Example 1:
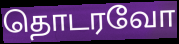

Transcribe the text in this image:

தொடரவோ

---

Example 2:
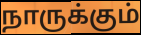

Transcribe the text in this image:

நாருக்கும்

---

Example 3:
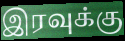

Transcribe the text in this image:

இரவுக்கு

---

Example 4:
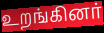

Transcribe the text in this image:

உறங்கினர்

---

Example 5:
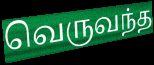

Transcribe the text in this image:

வெருவந்த